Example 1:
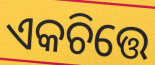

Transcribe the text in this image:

ଏକଚିତ୍ତେ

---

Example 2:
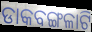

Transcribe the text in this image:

ଡାକବଙ୍ଗଳାଟି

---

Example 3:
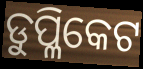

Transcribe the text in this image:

ଡୁପ୍ଳିକେଟ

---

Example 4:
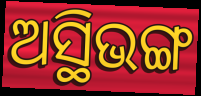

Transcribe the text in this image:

ଅସ୍ଥିଭଙ୍ଗ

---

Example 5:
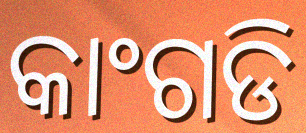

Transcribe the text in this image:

କାଂଗଡି